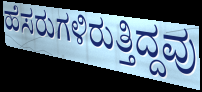
ಹೆಸರುಗಳಿರುತ್ತಿದ್ದವು